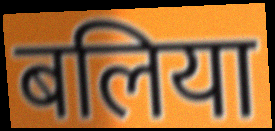
बलिया